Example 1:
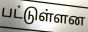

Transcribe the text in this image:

பட்டுள்ளன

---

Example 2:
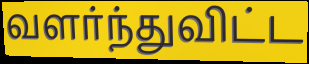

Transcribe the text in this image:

வளர்ந்துவிட்ட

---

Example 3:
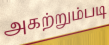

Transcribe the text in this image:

அகற்றும்படி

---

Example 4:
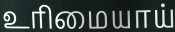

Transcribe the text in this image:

உரிமையாய்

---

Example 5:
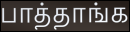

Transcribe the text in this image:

பாத்தாங்க